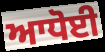
ਆਧੋਈ